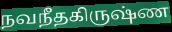
நவநீதகிருஷ்ண